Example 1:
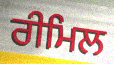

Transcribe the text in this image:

ਰੀਮਿਲ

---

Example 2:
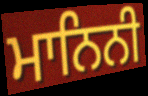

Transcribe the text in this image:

ਮਾਨਿਨੀ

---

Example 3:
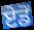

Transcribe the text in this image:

ਏਡੋਂ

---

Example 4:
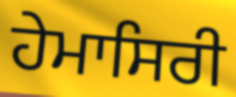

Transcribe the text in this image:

ਹੇਮਾਸਿਰੀ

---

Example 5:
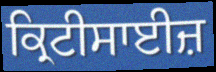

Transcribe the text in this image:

ਕ੍ਰਿਟੀਸਾਈਜ਼